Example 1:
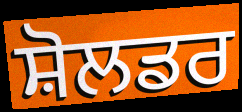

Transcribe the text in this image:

ਸ਼ੋਲਡਰ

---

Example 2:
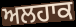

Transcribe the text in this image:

ਅਲਹਾਕ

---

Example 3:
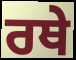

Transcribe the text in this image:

ਰਥੇ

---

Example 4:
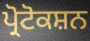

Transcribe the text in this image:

ਪ੍ਰੋਟੋਕਸ਼ਨ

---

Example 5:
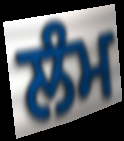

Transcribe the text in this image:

ਲੰਮ